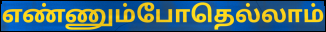
எண்ணும்போதெல்லாம்